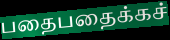
பதைபதைக்கச்